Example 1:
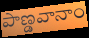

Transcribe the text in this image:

పాణ్డవానాం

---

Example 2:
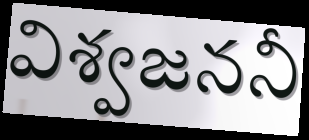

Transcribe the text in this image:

విశ్వజననీ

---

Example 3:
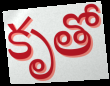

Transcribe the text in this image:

కృతో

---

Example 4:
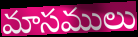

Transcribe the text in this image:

మాసములు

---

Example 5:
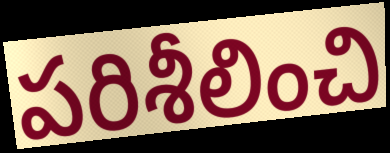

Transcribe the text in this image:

పరిశీలించి